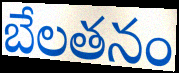
బేలతనం